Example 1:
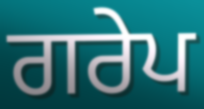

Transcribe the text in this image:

ਗਰੇਪ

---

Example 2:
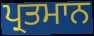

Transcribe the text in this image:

ਪ੍ਰਤਮਾਨ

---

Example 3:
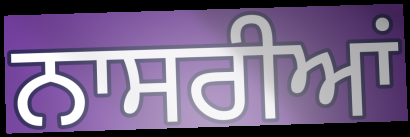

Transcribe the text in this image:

ਨਾਸਰੀਆਂ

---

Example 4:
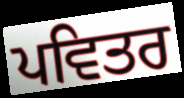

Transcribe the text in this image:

ਪਵਿਤਰ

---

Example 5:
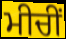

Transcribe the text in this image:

ਮੀਚੀਂ